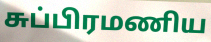
சுப்பிரமணிய